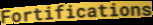
Fortifications